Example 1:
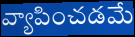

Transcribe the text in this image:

వ్యాపించడమే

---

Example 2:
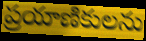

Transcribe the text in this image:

ప్రయాణికులను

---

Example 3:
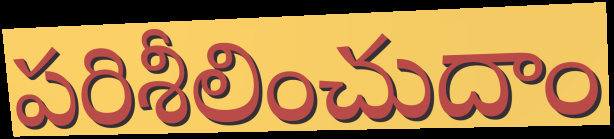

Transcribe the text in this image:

పరిశీలించుదాం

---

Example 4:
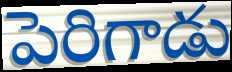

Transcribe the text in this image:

పెరిగాడు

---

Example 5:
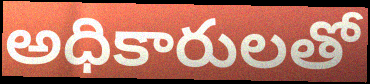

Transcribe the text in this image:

అధికారులతో